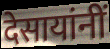
देसायांनीं